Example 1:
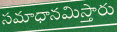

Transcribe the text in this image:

సమాధానమిస్తారు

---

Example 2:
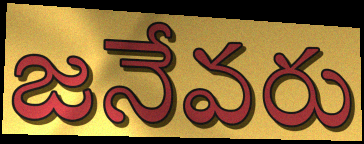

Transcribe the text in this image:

జనేవరు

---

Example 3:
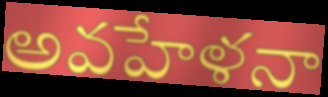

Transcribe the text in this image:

అవహేళనా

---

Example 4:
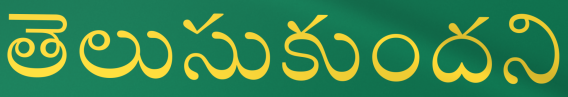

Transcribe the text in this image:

తెలుసుకుందని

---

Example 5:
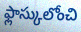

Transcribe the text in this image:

ఫ్లాస్కులోంచి